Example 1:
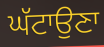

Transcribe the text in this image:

ਘੱਟਾਉਣਾ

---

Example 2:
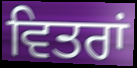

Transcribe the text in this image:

ਵਿਤਰਾਂ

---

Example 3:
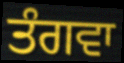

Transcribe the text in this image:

ਤੰਗਵਾ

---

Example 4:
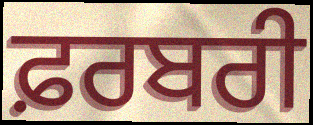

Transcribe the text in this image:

ਫ਼ਰਬਰੀ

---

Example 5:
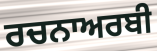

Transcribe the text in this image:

ਰਚਨਾਅਰਬੀ